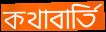
কথাবার্তি